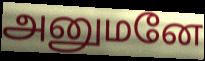
அனுமனே